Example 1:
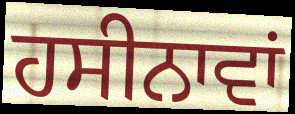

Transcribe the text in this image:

ਹਸੀਨਾਵਾਂ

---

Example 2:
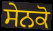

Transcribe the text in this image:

ਸੇਨਕੋ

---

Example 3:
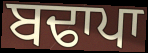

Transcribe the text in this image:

ਬਢਾਪਾ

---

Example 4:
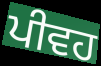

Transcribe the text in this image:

ਪੀਵਹ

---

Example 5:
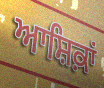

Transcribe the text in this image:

ਆਸ਼ਿਕ਼ਾਂ